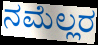
ನಮೆಲ್ಲರ